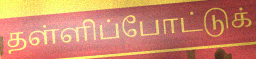
தள்ளிப்போட்டுக்